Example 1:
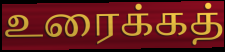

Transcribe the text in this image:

உரைக்கத்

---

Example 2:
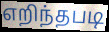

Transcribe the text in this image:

எறிந்தபடி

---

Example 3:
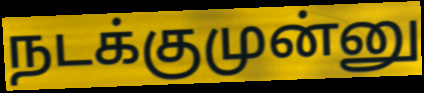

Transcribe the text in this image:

நடக்குமுன்னு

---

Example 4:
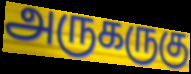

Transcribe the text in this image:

அருகருகு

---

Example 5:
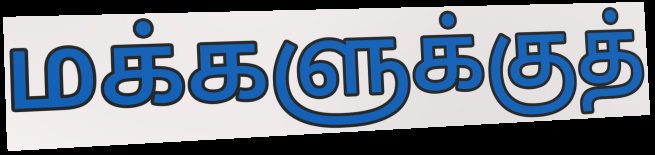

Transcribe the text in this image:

மக்களுக்குத்